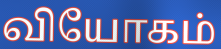
வியோகம்